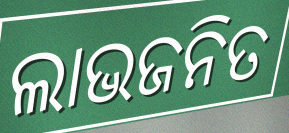
ଲାଭଜନିତ